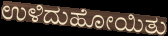
ಉಳಿದುಹೋಯಿತು